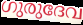
ഗുരുദേവ